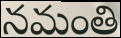
నమంతి